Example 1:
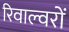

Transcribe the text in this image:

रिवाल्वरों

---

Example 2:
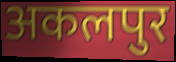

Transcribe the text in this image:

अकलपुर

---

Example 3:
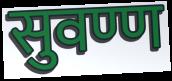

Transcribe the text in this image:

सुवण्ण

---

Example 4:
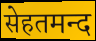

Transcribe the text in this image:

सेहतमन्द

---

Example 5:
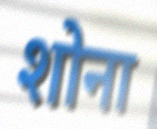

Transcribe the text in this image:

शोना